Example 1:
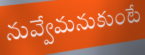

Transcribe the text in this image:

నువ్వేమనుకుంటే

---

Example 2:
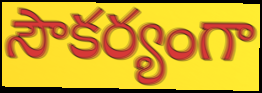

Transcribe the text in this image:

సౌకర్యంగా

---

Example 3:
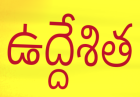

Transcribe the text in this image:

ఉద్దేశిత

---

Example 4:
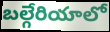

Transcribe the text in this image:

బల్గేరియాలో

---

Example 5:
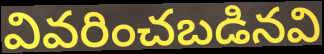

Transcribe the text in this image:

వివరించబడినవి